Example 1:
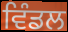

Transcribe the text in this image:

ਵਿੰਡਲ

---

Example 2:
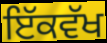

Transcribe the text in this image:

ਇੱਕਵੱਖ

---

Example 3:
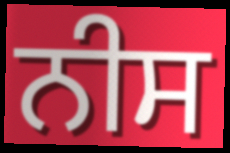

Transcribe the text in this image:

ਨੀਸ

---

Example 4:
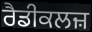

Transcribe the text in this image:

ਰੈਡੀਕਲਜ਼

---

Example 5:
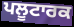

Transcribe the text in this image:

ਪਲੂਟਾਰਕ